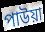
পাউয়া